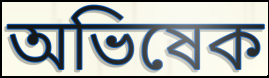
অভিষেক